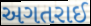
અગતરાઈ